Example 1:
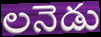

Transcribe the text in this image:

లనెడు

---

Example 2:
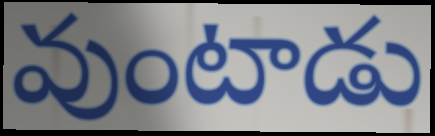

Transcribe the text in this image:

వుంటాడు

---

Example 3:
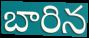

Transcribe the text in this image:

బారిన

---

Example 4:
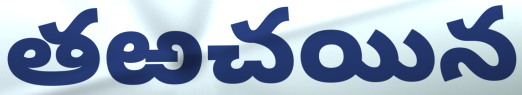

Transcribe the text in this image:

తఱచయిన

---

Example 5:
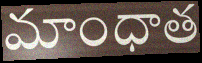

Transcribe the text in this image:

మాంధాత